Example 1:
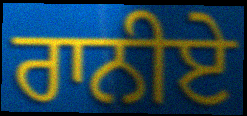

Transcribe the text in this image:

ਰਾਨੀਏ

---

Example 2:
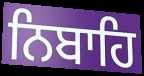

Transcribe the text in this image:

ਨਿਬਾਹਿ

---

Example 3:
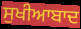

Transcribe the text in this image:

ਸੁਖੀਆਬਾਦ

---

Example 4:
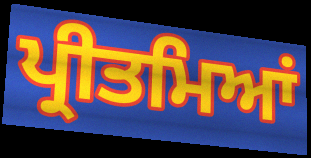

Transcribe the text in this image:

ਪ੍ਰੀਤਮਿਆਂ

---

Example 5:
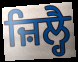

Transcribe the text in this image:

ਜ਼ਿਲ੍ਹੈ